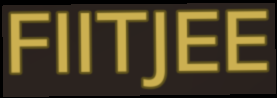
FIITJEE